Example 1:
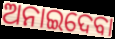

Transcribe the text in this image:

ଅନାଇଦେବା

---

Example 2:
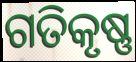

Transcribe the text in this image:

ଗତିକୃଷ୍ଣ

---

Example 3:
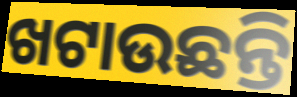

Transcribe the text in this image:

ଖଟାଉଛନ୍ତି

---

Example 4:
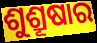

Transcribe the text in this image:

ଶୁଶ୍ରୂଷାର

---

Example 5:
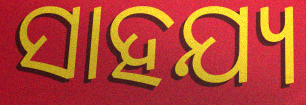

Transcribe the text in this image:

ସାହଯ୍ୟ